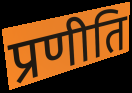
प्रणीति